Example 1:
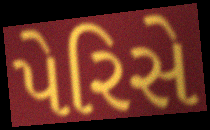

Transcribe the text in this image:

પેરિસે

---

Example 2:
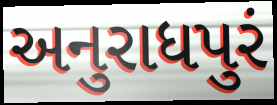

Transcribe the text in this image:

અનુરાધપુરં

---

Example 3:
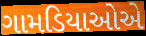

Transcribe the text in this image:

ગામડિયાઓએ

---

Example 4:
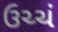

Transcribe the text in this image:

ઉચ્ચં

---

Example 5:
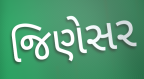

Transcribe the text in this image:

જિણેસર